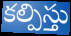
కల్పిస్తు